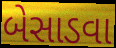
બેસાડવા